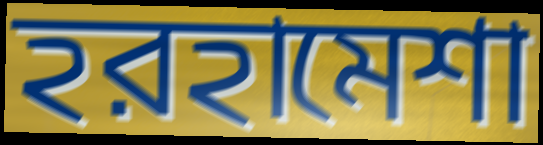
হরহামেশা